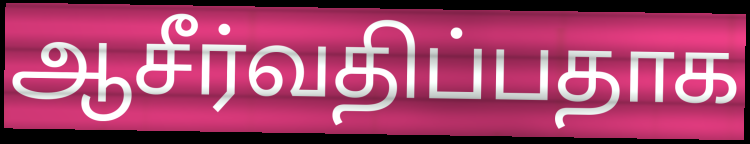
ஆசீர்வதிப்பதாக